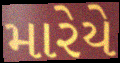
મારેયે